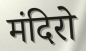
मंदिरो